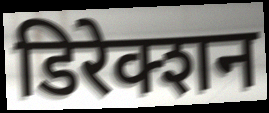
डिरेक्शन